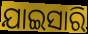
ଯାଇସାରି